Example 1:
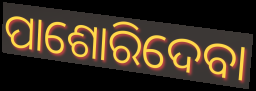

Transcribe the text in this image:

ପାଶୋରିଦେବା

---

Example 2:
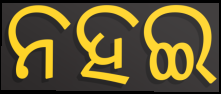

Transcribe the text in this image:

ନହଇ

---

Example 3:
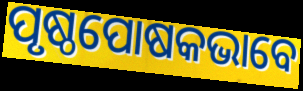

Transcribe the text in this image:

ପୃଷ୍ଠପୋଷକଭାବେ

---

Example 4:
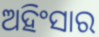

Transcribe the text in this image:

ଅହିଂସାର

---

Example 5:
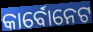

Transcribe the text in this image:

କାର୍ବୋନେଟ